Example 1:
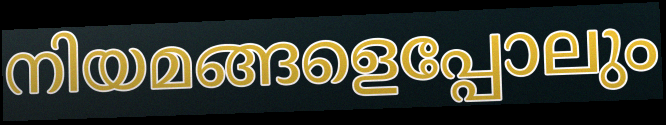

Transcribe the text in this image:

നിയമങ്ങളെപ്പോലും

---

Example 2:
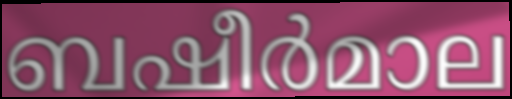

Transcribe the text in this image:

ബഷീർമാല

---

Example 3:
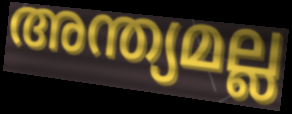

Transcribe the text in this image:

അന്ത്യമല്ല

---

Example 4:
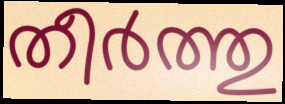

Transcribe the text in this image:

തീർത്തു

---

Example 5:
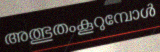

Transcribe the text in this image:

അത്ഭുതംകൂറുമ്പോൾ